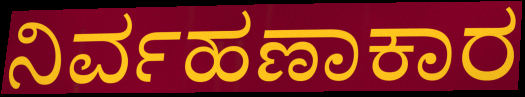
ನಿರ್ವಹಣಾಕಾರ